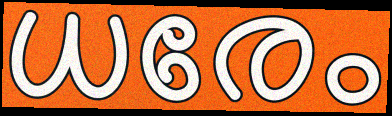
ധരേം